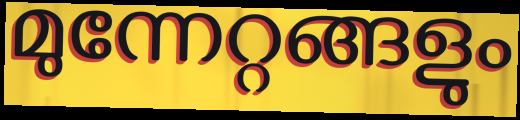
മുന്നേറ്റങ്ങളും